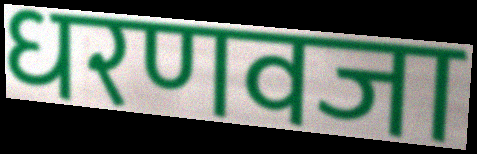
धरणवजा